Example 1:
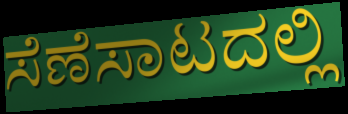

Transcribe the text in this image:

ಸೆಣೆಸಾಟದಲ್ಲಿ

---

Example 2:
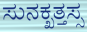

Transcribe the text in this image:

ಸುನಕ್ಖತ್ತಸ್ಸ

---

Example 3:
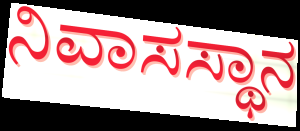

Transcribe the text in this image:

ನಿವಾಸಸ್ಥಾನ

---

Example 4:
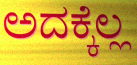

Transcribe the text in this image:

ಅದಕ್ಕೆಲ್ಲ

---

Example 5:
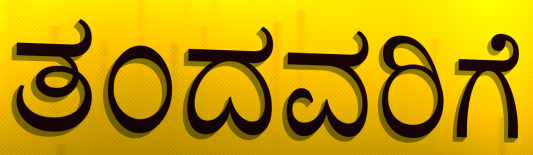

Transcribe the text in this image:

ತಂದವರಿಗೆ